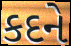
કદને